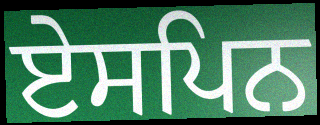
ਏਸਪਿਨ